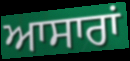
ਆਸਾਰਾਂ